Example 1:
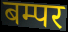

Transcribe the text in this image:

बम्पर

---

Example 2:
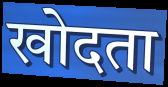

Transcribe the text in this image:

खोदता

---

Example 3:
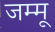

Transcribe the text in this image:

जम्मू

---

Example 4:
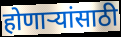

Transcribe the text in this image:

होणाऱ्यांसाठी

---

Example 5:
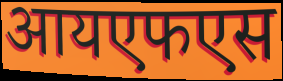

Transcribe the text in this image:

आयएफएस